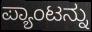
ಪ್ಯಾಂಟನ್ನು